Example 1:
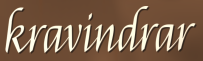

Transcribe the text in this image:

kravindrar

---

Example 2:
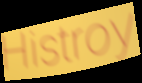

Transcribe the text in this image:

Histroy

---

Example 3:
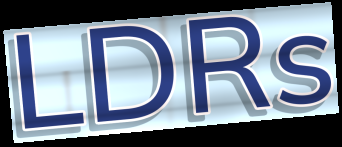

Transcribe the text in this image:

LDRs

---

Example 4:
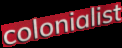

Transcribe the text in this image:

colonialist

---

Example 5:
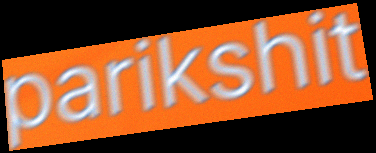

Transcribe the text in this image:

parikshit